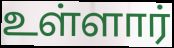
உள்ளார்